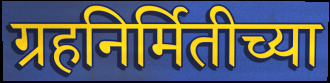
ग्रहनिर्मितीच्या